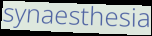
synaesthesia